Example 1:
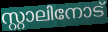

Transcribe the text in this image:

സ്റ്റാലിനോട്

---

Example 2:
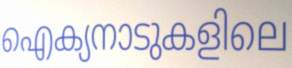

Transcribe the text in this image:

ഐക്യനാടുകളിലെ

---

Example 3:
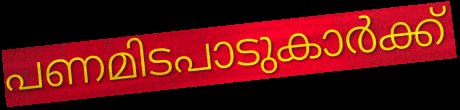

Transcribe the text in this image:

പണമിടപാടുകാർക്ക്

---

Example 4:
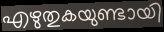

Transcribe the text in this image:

എഴുതുകയുണ്ടായി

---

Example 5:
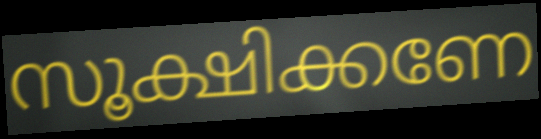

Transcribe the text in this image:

സൂക്ഷിക്കണേ